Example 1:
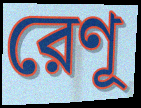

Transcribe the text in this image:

রেণূ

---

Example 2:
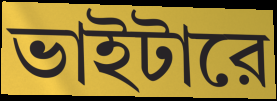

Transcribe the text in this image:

ভাইটারে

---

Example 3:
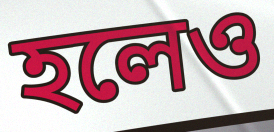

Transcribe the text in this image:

হলেও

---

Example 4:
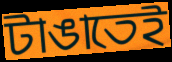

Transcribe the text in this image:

টাঙাতেই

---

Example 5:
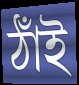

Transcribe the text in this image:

ঠাঁই